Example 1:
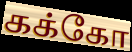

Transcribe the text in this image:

கக்கோ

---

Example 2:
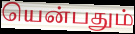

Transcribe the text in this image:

யென்பதும்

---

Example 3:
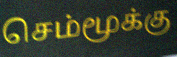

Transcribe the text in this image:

செம்மூக்கு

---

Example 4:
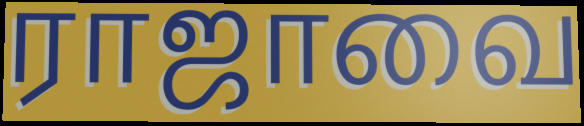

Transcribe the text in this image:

ராஜாவை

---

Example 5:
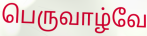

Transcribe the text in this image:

பெருவாழ்வே